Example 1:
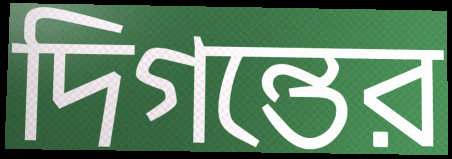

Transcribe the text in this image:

দিগন্তের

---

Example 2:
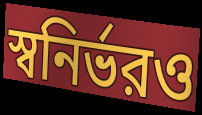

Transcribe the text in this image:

স্বনির্ভরও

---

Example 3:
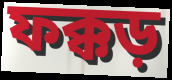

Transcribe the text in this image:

ফক্কড়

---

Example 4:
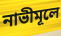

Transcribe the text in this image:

নাভীমূলে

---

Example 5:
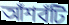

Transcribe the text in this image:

আঁশবঁটি